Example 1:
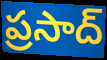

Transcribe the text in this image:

ప్రసాద్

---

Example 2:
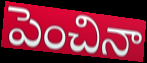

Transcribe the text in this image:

పెంచినా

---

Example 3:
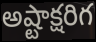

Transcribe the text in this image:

అష్టాక్షరిగ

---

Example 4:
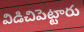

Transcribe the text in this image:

విడిచిపెట్టారు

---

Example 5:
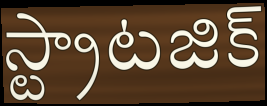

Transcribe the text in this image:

స్ట్రాటజిక్